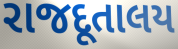
રાજદૂતાલય